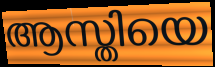
ആസ്തിയെ